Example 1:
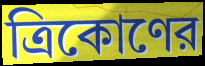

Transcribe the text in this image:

ত্রিকোণের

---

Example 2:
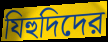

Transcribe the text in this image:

যিহুদিদের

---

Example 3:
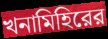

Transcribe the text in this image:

খনামিহিরের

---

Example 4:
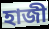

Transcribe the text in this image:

হাজী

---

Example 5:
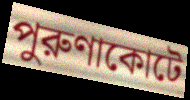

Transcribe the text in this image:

পুরুণাকোটে